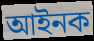
আইনক